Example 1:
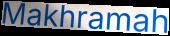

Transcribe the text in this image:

Makhramah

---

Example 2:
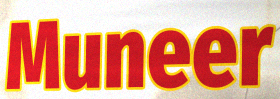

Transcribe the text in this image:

Muneer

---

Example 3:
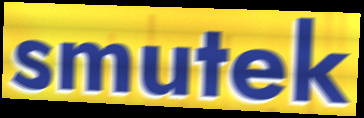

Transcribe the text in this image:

smutek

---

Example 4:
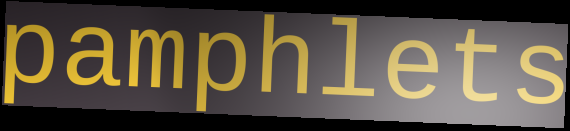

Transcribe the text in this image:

pamphlets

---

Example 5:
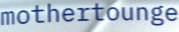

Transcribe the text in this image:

mothertounge